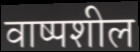
वाष्पशील